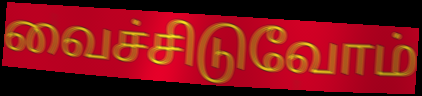
வைச்சிடுவோம்